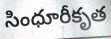
సింధూరీకృత